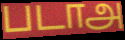
படாஅ